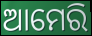
ଆମେରି